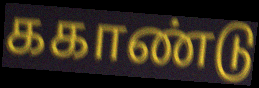
ககாண்டு